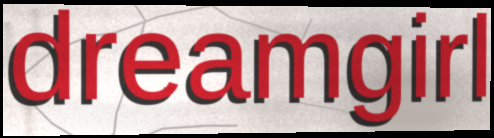
dreamgirl